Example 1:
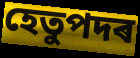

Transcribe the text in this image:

হেতুপদৰ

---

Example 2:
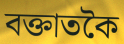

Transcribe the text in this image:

বক্তাতকৈ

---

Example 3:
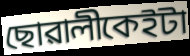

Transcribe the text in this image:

ছোৱালীকেইটা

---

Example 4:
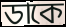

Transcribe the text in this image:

ডাকে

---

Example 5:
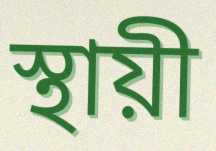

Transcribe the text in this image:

স্থায়ী